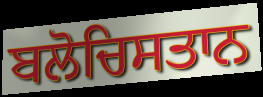
ਬਲੋਚਿਸਤਾਨ